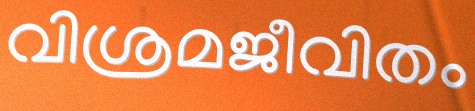
വിശ്രമജീവിതം